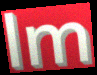
Im